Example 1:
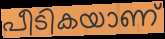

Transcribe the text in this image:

പീടികയാണ്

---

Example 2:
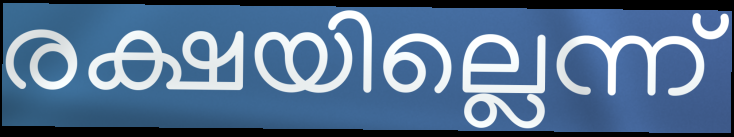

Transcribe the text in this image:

രക്ഷയില്ലെന്ന്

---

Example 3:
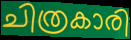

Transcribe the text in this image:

ചിത്രകാരി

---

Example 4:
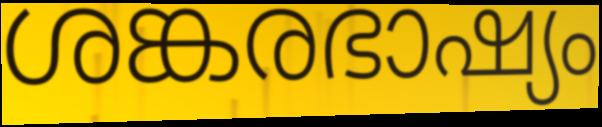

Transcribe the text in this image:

ശങ്കരഭാഷ്യം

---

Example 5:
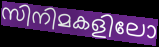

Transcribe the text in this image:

സിനിമകളിലോ